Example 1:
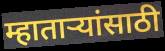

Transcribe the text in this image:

म्हाताऱ्यांसाठी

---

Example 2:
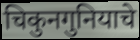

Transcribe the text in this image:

चिकुनगुनियाचे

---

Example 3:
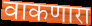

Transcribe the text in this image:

वाकणारा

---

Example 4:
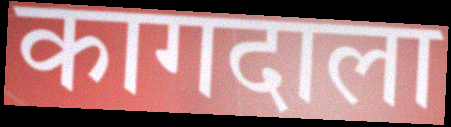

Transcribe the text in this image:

कागदाला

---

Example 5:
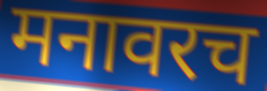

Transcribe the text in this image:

मनावरच